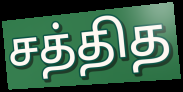
சத்தித